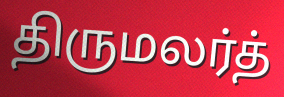
திருமலர்த்